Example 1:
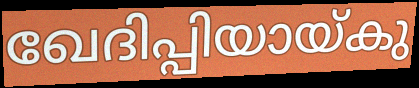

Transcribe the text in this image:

ഖേദിപ്പിയായ്കു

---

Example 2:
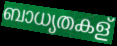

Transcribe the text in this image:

ബാധ്യതകള്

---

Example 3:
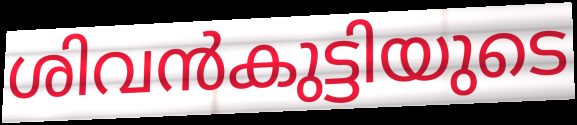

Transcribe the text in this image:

ശിവൻകുട്ടിയുടെ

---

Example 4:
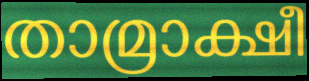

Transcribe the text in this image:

താമ്രാക്ഷീ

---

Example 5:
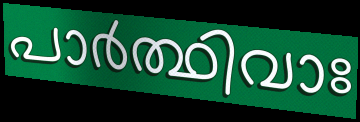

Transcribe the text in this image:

പാർത്ഥിവാഃ